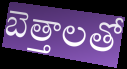
బెత్తాలతో